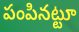
పంపినట్టూ